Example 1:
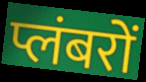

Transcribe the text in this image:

प्लंबरों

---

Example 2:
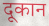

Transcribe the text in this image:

दूकान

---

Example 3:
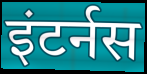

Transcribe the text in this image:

इंटर्नस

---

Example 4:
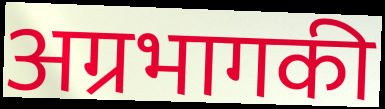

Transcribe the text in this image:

अग्रभागकी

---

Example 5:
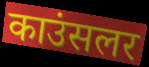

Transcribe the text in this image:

काउंसलर